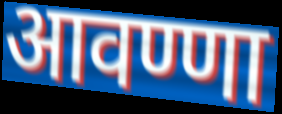
आवण्णा